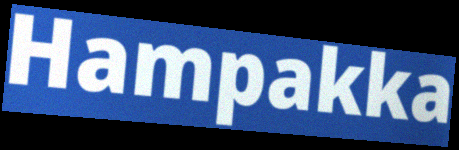
Hampakka